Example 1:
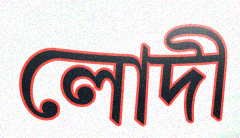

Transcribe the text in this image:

লোদী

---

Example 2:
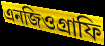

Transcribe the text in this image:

এনজিওগ্রাফি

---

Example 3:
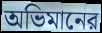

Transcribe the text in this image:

অভিমানের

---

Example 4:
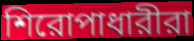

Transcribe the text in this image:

শিরোপাধারীরা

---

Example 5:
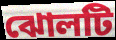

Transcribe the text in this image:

ঝোলটি